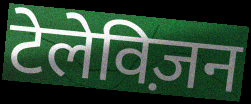
टेलेविज़न